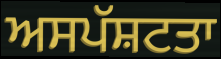
ਅਸਪੱਸ਼ਟਤਾ